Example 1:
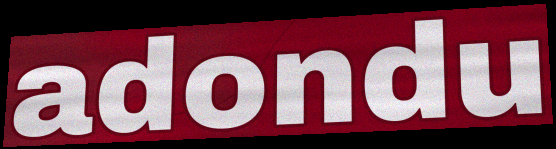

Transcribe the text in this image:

adondu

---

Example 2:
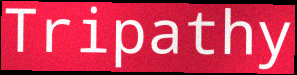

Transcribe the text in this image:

Tripathy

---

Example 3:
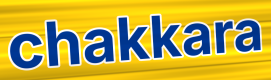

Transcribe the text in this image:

chakkara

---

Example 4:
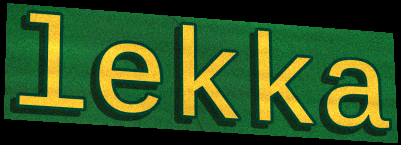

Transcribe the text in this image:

lekka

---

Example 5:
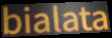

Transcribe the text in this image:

bialata